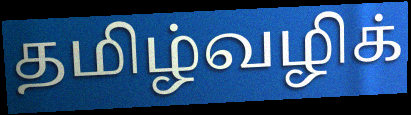
தமிழ்வழிக்